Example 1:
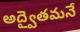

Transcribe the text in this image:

అద్వైతమనే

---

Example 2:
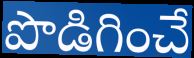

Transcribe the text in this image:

పొడిగించే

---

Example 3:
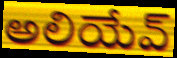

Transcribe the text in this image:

అలియేవ్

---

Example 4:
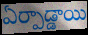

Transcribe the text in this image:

ఏర్పాడ్డాయి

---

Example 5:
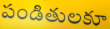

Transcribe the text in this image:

పండితులకూ